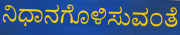
ನಿಧಾನಗೊಳಿಸುವಂತೆ